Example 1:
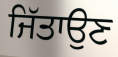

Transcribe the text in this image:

ਜਿੱਤਾਉਣ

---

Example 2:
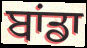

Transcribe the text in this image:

ਬਾਂਡਾ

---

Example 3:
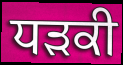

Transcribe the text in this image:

ਧੜਕੀ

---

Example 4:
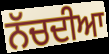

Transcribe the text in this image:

ਨੱਚਦੀਆ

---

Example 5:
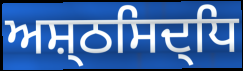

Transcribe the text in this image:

ਅਸ਼੍ਠਸਿਦ੍ਧਿ